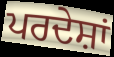
ਪਰਦੇਸ਼ਾਂ